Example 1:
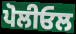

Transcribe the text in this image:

ਪੋਲੀਓਲ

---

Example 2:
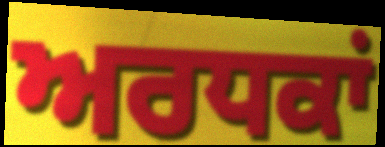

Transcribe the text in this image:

ਅਰਧਕਾਂ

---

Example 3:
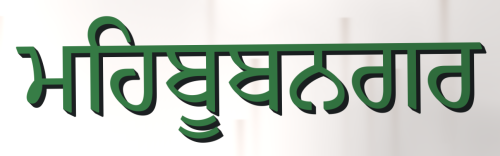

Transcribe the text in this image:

ਮਹਿਬੂਬਨਗਰ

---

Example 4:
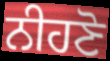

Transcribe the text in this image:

ਨੀਹਣੋ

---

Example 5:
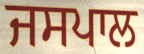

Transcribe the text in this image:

ਜਸਪਾਲ